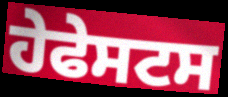
ਹੇਫੇਸਟਸ